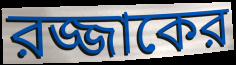
রজ্জাকের